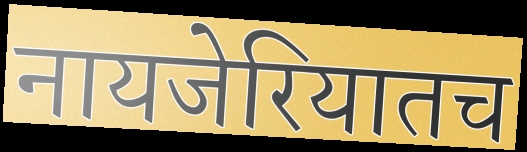
नायजेरियातच